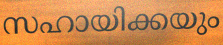
സഹായിക്കയും